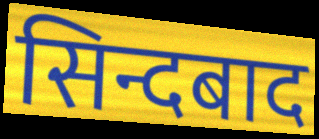
सिन्दबाद